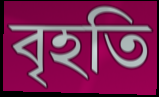
বৃহতি